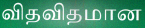
விதவிதமான